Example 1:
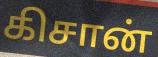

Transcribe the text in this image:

கிசான்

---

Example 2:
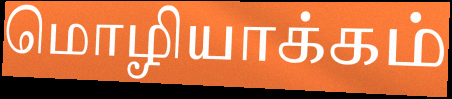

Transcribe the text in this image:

மொழியாக்கம்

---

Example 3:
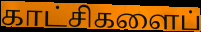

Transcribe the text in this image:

காட்சிகளைப்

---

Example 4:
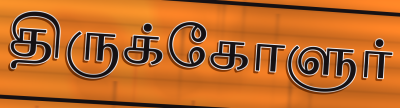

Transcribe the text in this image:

திருக்கோளுர்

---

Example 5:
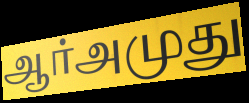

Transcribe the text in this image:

ஆர்அமுது